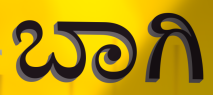
ಬಾಗಿ